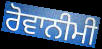
ਰੋਵਾਨੀਮੀ